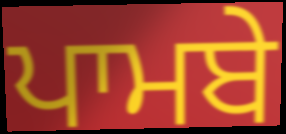
ਪਾਮਬੇ